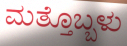
ಮತ್ತೊಬ್ಬಳು